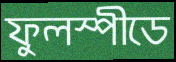
ফুলস্পীডে